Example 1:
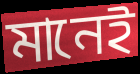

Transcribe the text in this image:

মানেই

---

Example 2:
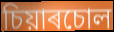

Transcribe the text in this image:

চিয়াৰচোল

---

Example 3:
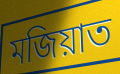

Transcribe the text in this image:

মজিয়াত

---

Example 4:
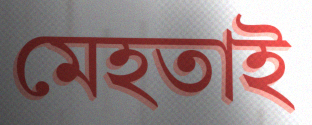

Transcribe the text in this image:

মেহতাই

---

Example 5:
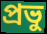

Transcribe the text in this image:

প্ৰভু